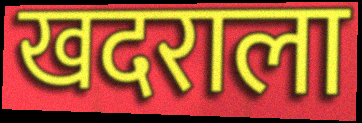
खदराला